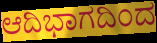
ಆದಿಭಾಗದಿಂದ